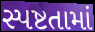
સ્પષ્ટતામાં